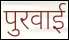
पुरवाई